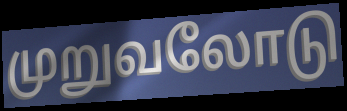
முறுவலோடு